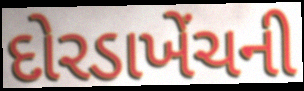
દોરડાખેંચની